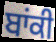
ਬਾਂਕੀ